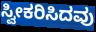
ಸ್ವೀಕರಿಸಿದವು